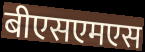
बीएसएमएस